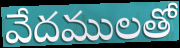
వేదములతో